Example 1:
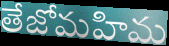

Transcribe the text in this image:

తేజోమహిమ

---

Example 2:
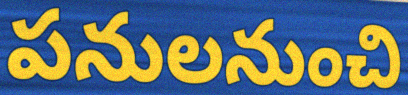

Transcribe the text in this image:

పనులనుంచి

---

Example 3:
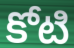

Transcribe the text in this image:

కోటి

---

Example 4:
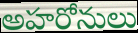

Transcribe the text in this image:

అహరోనులు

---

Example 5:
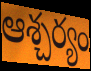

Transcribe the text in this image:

ఆశ్చర్యం